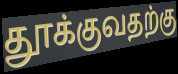
தூக்குவதற்கு